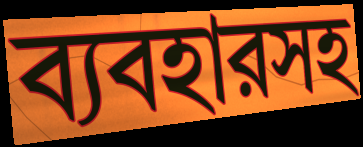
ব্যবহারসহ